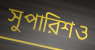
সুপারিশও